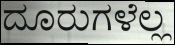
ದೂರುಗಳೆಲ್ಲ